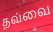
தவ்வை